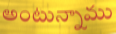
అంటున్నాము